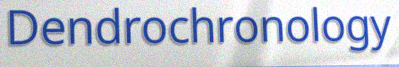
Dendrochronology